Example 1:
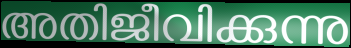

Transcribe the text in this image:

അതിജീവിക്കുന്നു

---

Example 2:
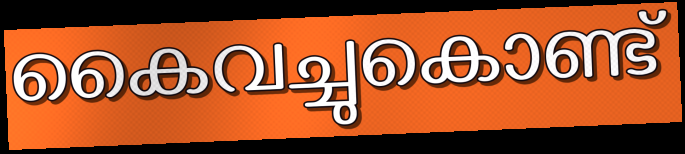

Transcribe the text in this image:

കൈവച്ചുകൊണ്ട്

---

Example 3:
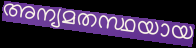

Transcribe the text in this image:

അന്യമതസ്ഥയായ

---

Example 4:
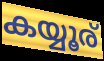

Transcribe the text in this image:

കയ്യൂര്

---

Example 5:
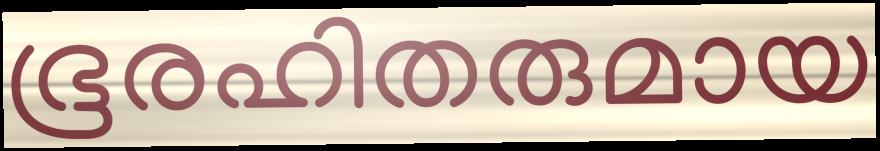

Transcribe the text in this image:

ഭൂരഹിതരുമായ